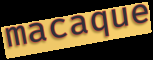
macaque